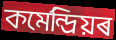
কৰ্মেন্দ্ৰিয়ৰ